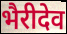
भैरीदेव